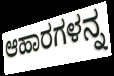
ಆಹಾರಗಳನ್ನ